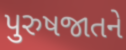
પુરુષજાતને